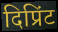
दिप्रिंट